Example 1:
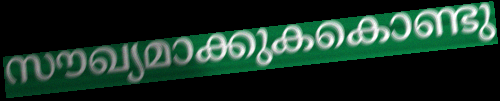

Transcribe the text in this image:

സൗഖ്യമാക്കുകകൊണ്ടു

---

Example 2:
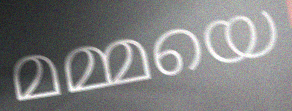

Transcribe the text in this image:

മമ്മയെ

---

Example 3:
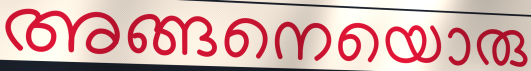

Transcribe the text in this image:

അങ്ങനെയൊരു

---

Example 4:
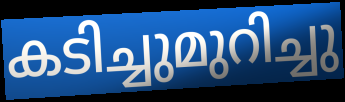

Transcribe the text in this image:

കടിച്ചുമുറിച്ചു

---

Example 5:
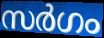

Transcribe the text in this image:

സർഗം